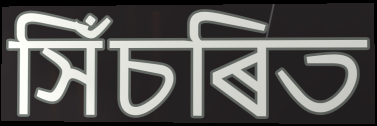
সিঁচৰিত